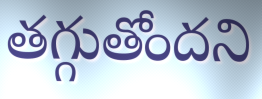
తగ్గుతోందని